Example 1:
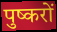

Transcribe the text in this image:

पुष्करों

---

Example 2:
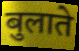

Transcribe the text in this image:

बुलाते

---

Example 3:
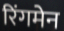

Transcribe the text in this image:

रिंगमेन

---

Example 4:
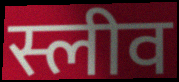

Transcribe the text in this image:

स्लीव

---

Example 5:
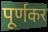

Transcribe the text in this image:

पूर्णकर